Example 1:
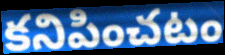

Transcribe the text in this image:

కనిపించటం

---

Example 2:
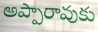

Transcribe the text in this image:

అప్పారావుకు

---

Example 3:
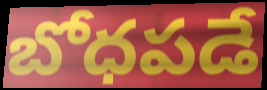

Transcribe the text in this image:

బోధపడే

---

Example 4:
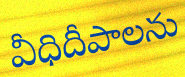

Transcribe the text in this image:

వీధిదీపాలను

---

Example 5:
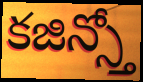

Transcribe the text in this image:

కజిన్స్తో